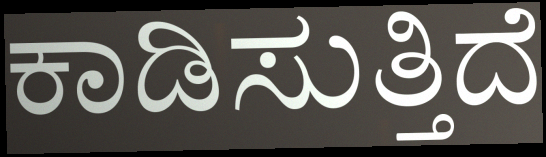
ಕಾಡಿಸುತ್ತಿದೆ